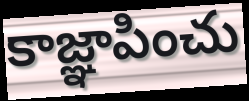
కాజ్ఞాపించు